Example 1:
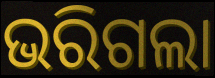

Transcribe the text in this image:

ଭରିଗଲା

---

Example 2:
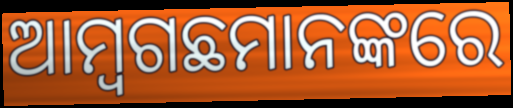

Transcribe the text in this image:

ଆମ୍ବଗଛମାନଙ୍କରେ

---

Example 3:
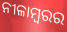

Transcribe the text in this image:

ନୀଳାମ୍ବରର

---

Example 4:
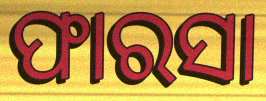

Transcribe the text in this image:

ଫାରସା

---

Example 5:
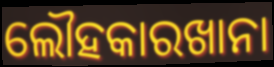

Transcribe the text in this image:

ଲୌହକାରଖାନା